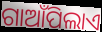
ଗାଆଁପିଲାଏ